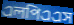
এলপিএএস